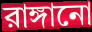
রাঙ্গানো